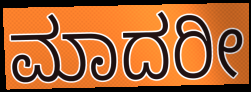
ಮಾದರೀ